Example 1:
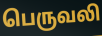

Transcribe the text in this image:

பெருவலி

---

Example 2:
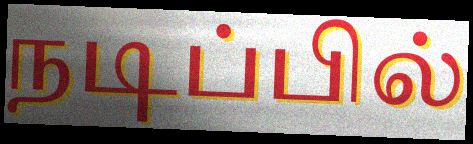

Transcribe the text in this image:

நடிப்பில்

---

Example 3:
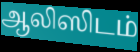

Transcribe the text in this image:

ஆலிஸிடம்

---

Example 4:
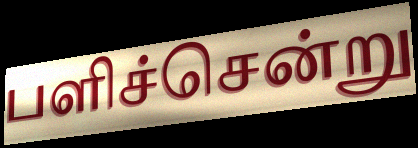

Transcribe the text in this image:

பளிச்சென்று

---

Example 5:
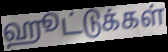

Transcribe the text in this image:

ஹூட்டுக்கள்